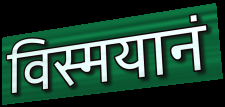
विस्मयानं